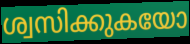
ശ്വസിക്കുകയോ